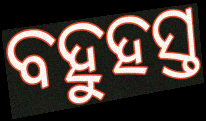
ବହୁହସ୍ତ